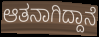
ಆತನಾಗಿದ್ದಾನೆ